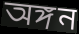
অঙ্গন